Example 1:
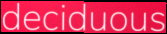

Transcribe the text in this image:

deciduous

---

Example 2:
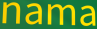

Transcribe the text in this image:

nama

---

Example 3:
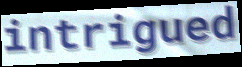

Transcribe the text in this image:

intrigued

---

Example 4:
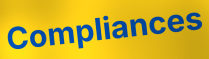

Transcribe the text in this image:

Compliances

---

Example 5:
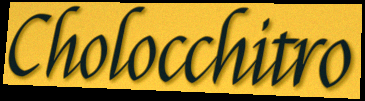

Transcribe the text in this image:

Cholocchitro